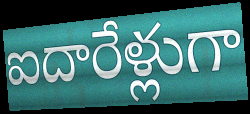
ఐదారేళ్లుగా